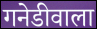
गनेडीवाला